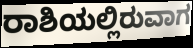
ರಾಶಿಯಲ್ಲಿರುವಾಗ